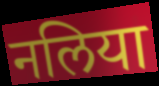
नलिया